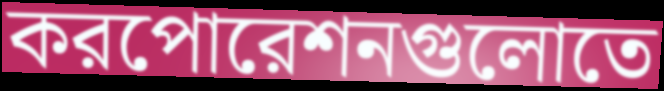
করপোরেশনগুলোতে